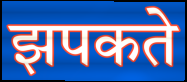
झपकते